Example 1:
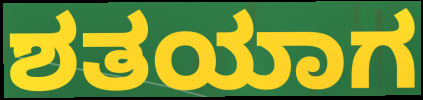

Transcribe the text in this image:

ಶತಯಾಗ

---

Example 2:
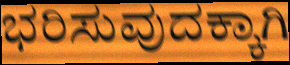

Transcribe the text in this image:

ಭರಿಸುವುದಕ್ಕಾಗಿ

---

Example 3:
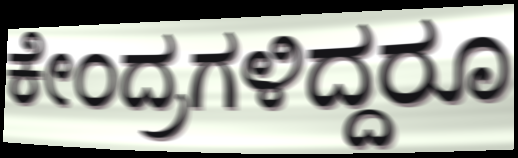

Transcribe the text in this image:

ಕೇಂದ್ರಗಳಿದ್ದರೂ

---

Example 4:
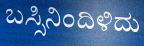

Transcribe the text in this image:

ಬಸ್ಸಿನಿಂದಿಳಿದು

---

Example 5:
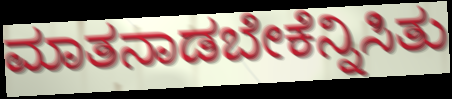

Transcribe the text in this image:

ಮಾತನಾಡಬೇಕೆನ್ನಿಸಿತು